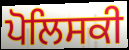
ਪੋਲਿਸਕੀ